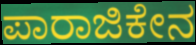
ಪಾರಾಜಿಕೇನ